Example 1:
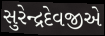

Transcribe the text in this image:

સુરેન્દ્રદેવજીએ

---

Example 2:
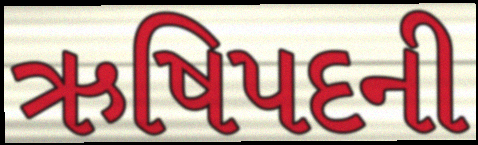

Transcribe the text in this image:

ઋષિપદની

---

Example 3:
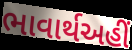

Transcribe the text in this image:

ભાવાર્થઅહીં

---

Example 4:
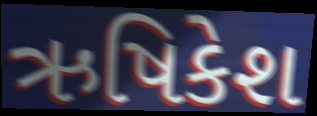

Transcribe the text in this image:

ઋષિકેશ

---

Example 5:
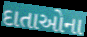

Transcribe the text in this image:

દાતાઓના